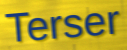
Terser